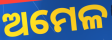
ଅମେଳ